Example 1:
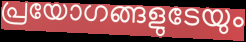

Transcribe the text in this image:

പ്രയോഗങ്ങളുടേയും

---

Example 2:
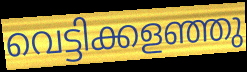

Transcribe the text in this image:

വെട്ടിക്കളഞ്ഞു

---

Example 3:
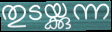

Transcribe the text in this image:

തുടയ്ക്കുന്ന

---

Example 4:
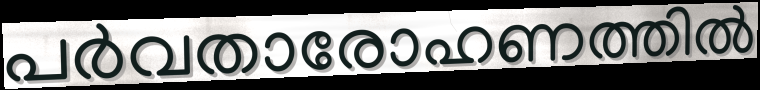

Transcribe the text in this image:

പർവതാരോഹണത്തിൽ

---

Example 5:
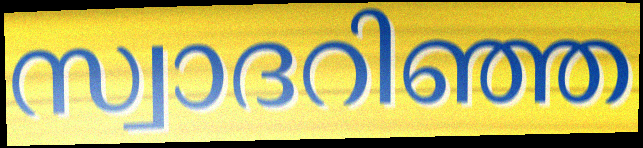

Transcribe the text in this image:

സ്വാദറിഞ്ഞ